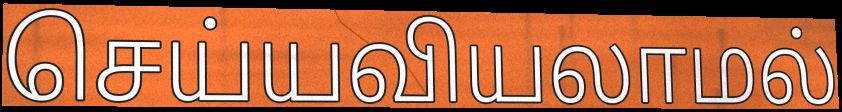
செய்யவியலாமல்